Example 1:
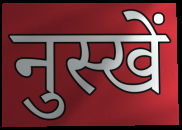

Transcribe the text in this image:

नुस्खें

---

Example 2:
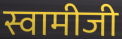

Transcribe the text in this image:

स्‍वामीजी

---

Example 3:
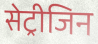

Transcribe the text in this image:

सेट्रीजिन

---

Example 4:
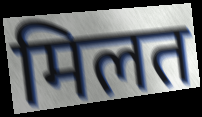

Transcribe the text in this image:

मिलत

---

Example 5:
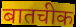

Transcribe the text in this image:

बातचीक